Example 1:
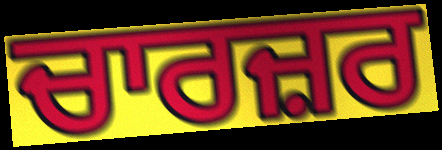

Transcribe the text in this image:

ਚਾਰਜ਼ਰ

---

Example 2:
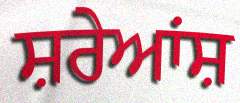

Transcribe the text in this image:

ਸ਼ਰੇਆਂਸ਼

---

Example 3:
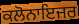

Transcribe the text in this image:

ਕਲੋਨਾਇਜਰ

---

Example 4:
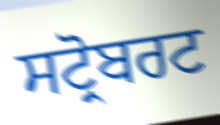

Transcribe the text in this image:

ਸਟ੍ਰੋਬਰਟ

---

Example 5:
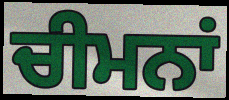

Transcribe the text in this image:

ਚੀਮਨਾਂ